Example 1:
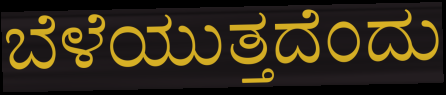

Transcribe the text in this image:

ಬೆಳೆಯುತ್ತದೆಂದು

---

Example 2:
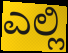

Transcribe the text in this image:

ಎಲ್ಲಿ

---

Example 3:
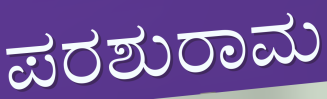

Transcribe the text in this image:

ಪರಶುರಾಮ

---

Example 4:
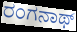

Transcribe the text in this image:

ರಂಗನಾಥ್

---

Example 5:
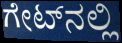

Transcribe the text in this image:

ಗೇಟ್‌ನಲ್ಲಿ